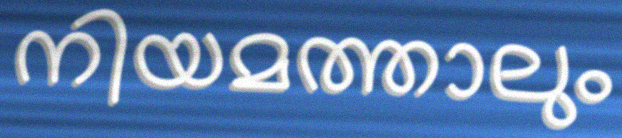
നിയമത്താലും